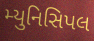
મ્યુનિસિપલ